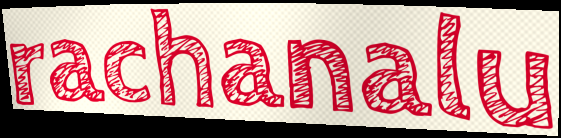
rachanalu